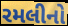
રમલીનો